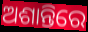
ଅଶାନ୍ତିରେ